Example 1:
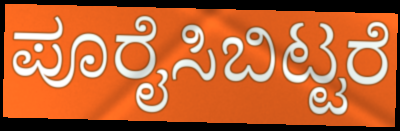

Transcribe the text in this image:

ಪೂರೈಸಿಬಿಟ್ಟರೆ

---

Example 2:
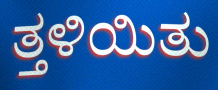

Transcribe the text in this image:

ತ್ತಳಿಯಿತು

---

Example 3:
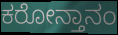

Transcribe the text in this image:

ಕರೋನ್ತಾನಂ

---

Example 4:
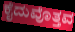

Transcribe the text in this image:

ಕೈದುವೊತ್ತವ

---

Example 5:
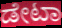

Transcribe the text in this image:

ಡೇಟಾ